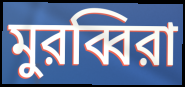
মুরব্বিরা